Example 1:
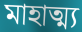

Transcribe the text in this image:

মাহাত্ম্য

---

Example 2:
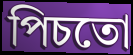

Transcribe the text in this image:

পিচতো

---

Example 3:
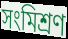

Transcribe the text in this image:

সংমিশ্ৰণ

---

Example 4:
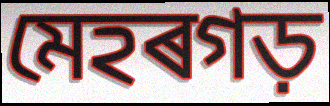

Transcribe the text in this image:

মেহৰগড়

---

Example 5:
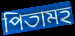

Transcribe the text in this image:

পিতামহ